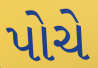
પોચે